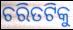
ଚରିତଟିକୁ